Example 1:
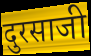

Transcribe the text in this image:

दुरसाजी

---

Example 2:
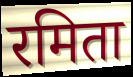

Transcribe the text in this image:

रमिता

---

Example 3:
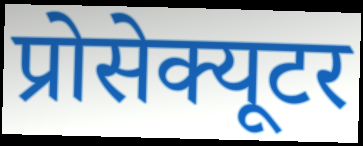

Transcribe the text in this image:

प्रोसेक्यूटर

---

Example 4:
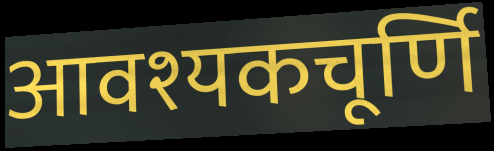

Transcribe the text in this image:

आवश्यकचूर्णि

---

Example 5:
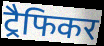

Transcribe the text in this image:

ट्रैफिकर